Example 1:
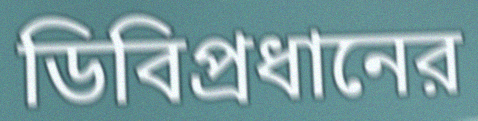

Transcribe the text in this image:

ডিবিপ্রধানের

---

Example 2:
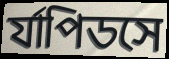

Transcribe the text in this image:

র্যাপিডসে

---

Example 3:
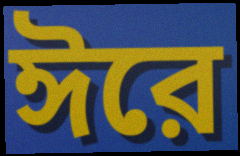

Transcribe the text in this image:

ঈরে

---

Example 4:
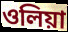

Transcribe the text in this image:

ওলিয়া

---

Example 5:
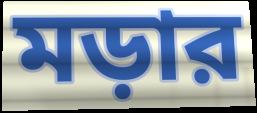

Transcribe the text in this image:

মড়ার